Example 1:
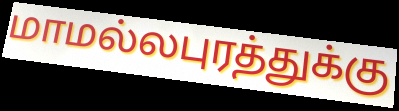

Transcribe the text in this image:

மாமல்லபுரத்துக்கு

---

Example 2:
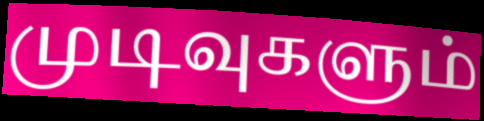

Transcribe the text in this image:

முடிவுகளும்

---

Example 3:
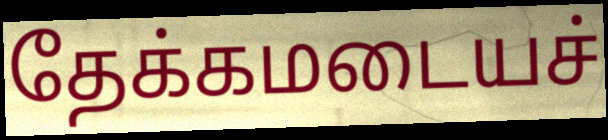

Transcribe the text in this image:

தேக்கமடையச்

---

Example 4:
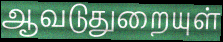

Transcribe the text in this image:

ஆவடுதுறையுள்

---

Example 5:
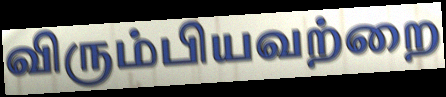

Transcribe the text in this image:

விரும்பியவற்றை